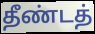
தீண்டத்